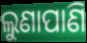
ଲୁଣାପାଣି